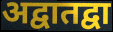
अद्वातद्वा